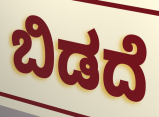
ಬಿಡದೆ